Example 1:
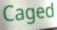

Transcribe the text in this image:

Caged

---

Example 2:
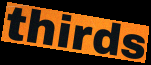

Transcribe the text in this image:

thirds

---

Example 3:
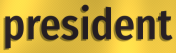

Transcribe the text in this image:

president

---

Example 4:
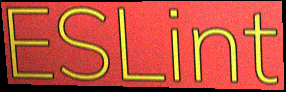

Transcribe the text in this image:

ESLint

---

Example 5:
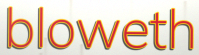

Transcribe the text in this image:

bloweth